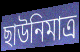
ছাউনিমাত্র